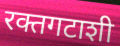
रक्तगटाशी